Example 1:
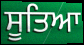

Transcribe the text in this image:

ਸੂਤਿਆ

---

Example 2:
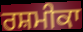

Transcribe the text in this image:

ਰਸ਼ਮੀਕਾ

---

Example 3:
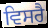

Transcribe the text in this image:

ਵਿਸਰੈ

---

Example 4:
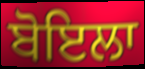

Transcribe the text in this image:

ਬੋਇਲਾ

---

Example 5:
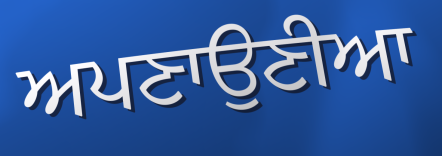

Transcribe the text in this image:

ਅਪਣਾਉਣੀਆ